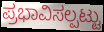
ಪ್ರಭಾವಿಸಲ್ಪಟ್ಟು